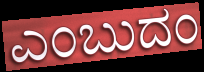
ಎಂಬುದಂ